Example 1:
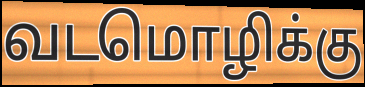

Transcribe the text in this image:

வடமொழிக்கு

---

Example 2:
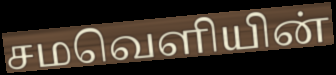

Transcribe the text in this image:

சமவெளியின்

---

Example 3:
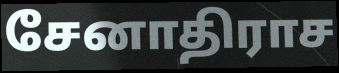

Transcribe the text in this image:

சேனாதிராச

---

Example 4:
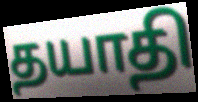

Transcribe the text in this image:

தயாதி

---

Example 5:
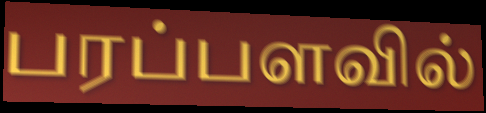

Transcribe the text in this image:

பரப்பளவில்